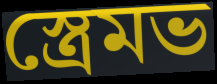
স্ত্রেমভ